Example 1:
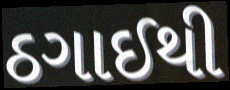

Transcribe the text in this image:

ઠગાઈથી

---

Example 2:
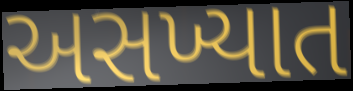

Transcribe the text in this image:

અસખ્યાત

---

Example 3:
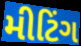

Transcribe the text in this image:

મીટિંગ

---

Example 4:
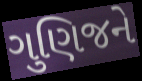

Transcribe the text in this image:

ગુણિજને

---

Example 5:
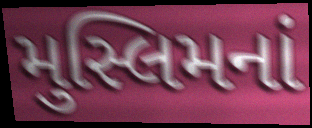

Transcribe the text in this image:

મુસ્લિમનાં